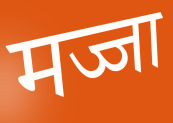
मज्जा